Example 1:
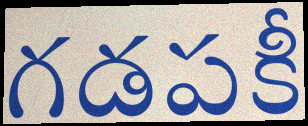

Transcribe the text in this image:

గడపకీ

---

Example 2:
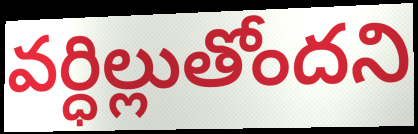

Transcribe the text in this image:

వర్ధిల్లుతోందని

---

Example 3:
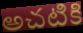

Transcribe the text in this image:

అచటికి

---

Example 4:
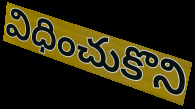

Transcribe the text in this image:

విధించుకొని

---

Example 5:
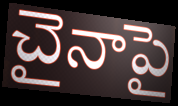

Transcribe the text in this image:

చైనాపై